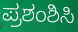
ಪ್ರಶಂಶಿಸಿ